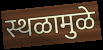
स्थळामुळे